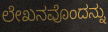
ಲೇಖನವೊಂದನ್ನು